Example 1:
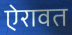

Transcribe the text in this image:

ऐरावत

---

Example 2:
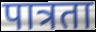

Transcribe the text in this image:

पात्रता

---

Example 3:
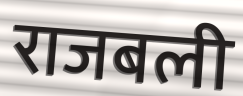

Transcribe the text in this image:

राजबली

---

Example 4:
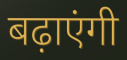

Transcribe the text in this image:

बढ़ाएंगी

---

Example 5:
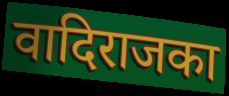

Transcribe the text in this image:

वादिराजका